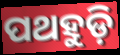
ପଥହୁଡ଼ି